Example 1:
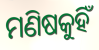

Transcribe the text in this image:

ମଣିଷକୁହିଁ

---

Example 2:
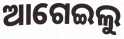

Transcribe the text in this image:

ଆଗେଇଲୁ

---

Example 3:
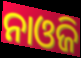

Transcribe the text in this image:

ନାଓଜି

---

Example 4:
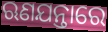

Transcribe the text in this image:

ଋଣଯନ୍ତାରେ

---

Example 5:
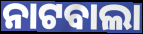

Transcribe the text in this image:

ନାଟବାଲା